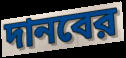
দানবের